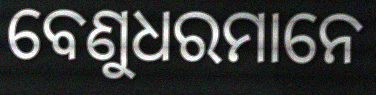
ବେଣୁଧରମାନେ